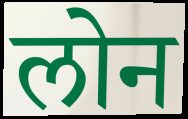
लोन